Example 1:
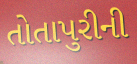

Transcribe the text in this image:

તોતાપુરીની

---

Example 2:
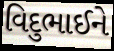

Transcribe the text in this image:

વિદુભાઈને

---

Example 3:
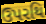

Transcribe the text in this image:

ઉપરથિ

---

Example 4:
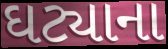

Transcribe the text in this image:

ઘટ્યાના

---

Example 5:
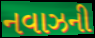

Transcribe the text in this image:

નવાઝની